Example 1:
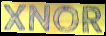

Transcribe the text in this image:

XNOR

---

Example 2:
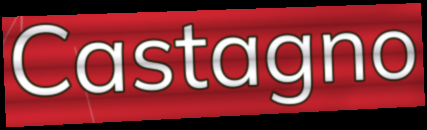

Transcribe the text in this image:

Castagno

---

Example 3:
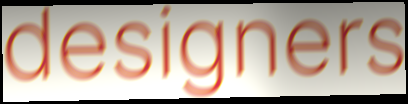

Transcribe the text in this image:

designers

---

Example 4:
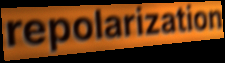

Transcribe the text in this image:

repolarization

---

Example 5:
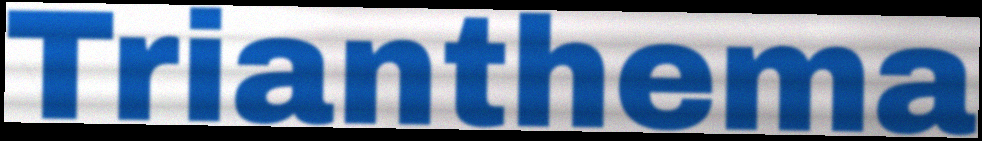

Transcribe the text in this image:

Trianthema